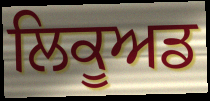
ਲਿਕੂਅਡ